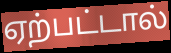
ஏற்பட்டால்